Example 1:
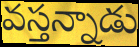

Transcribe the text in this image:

వస్తన్నాడు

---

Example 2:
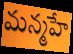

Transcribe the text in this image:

మన్మహే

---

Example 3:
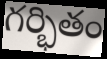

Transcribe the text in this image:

గర్భితం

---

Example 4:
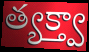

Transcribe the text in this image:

త్యక్త్వా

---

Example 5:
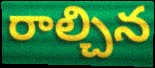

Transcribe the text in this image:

రాల్చిన